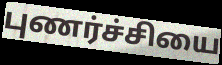
புணர்ச்சியை